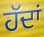
ਹੱਦਾਂ